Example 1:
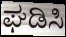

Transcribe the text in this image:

ಘಡಿಸಿ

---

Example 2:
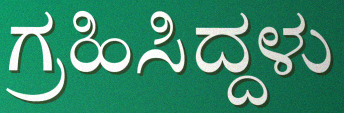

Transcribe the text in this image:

ಗ್ರಹಿಸಿದ್ದಳು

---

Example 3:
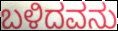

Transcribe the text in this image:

ಬಳಿದವನು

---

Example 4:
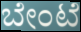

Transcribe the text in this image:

ಬೇಂಟೆ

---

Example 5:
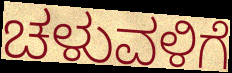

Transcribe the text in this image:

ಚಳುವಳಿಗೆ